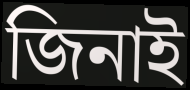
জিনাই